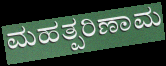
ಮಹತ್ಪರಿಣಾಮ